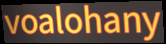
voalohany